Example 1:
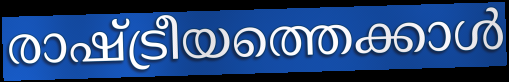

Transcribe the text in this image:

രാഷ്ട്രീയത്തെക്കാൾ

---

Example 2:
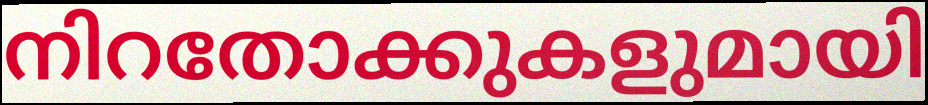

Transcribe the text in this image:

നിറതോക്കുകളുമായി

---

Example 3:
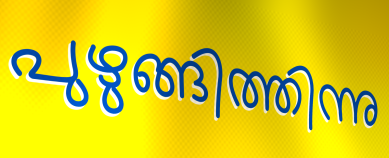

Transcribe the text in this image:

പുഴുങ്ങിത്തിന്നു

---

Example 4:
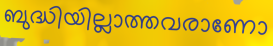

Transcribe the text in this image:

ബുദ്ധിയില്ലാത്തവരാണോ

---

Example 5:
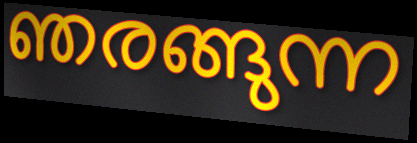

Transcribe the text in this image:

ഞരങ്ങുന്ന